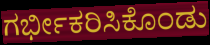
ಗರ್ಭೀಕರಿಸಿಕೊಂಡು